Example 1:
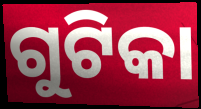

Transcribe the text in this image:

ଗୁଟିକା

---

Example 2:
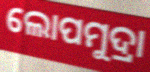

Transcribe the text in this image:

ଲୋପମୁଦ୍ରା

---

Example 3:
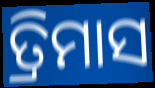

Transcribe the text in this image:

ତ୍ରିମାସ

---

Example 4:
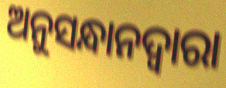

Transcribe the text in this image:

ଅନୁସନ୍ଧାନଦ୍ୱାରା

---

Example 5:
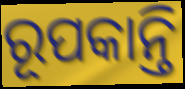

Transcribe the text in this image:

ରୂପକାନ୍ତି